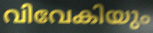
വിവേകിയും